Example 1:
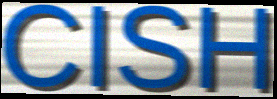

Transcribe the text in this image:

CISH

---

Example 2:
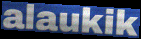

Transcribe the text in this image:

alaukik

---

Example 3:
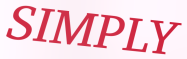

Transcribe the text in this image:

SIMPLY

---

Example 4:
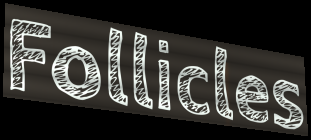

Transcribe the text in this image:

Follicles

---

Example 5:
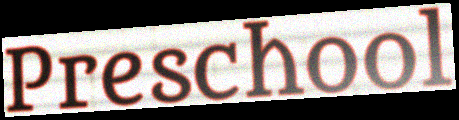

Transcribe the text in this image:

Preschool